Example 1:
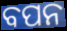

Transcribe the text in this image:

ବପନ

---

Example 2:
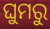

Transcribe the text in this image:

ଘୁମରୁ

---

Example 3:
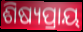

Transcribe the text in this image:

ଶିଷ୍ୟପ୍ରାୟ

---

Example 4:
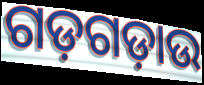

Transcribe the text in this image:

ଗଡ଼ଗଡ଼ାଉ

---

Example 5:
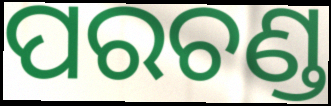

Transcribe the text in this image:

ପରଚଣ୍ଡ